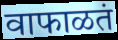
वाफाळतं